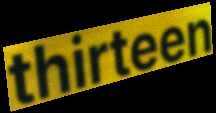
thirteen